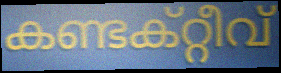
കണ്ടക്റ്റീവ്